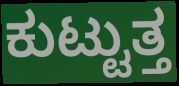
ಕುಟ್ಟುತ್ತ